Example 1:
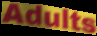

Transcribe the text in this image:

Adults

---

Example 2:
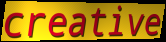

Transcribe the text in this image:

creative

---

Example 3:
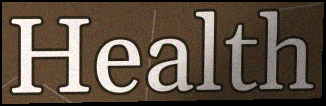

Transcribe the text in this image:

Health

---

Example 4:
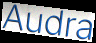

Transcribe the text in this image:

Audra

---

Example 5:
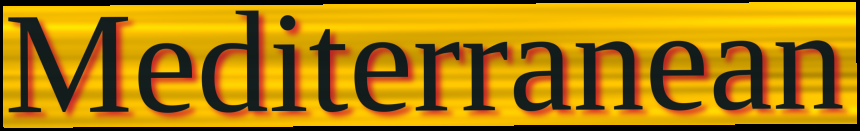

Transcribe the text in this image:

Mediterranean